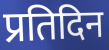
प्रतिदिन